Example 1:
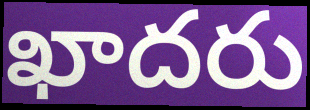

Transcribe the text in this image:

ఖాదరు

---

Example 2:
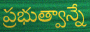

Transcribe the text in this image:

ప్రభుత్వాన్నే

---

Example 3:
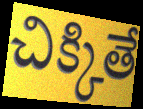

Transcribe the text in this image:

చిక్కితే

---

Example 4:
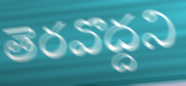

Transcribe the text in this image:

తెరవొద్దని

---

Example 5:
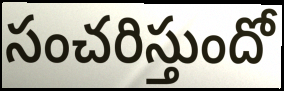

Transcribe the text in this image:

సంచరిస్తుందో